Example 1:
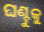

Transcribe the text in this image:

ଘଣ୍ଟୁକୁ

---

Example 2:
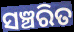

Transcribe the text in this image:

ସଞ୍ଚରିତ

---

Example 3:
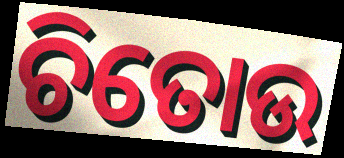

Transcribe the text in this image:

ଚିତୋଉ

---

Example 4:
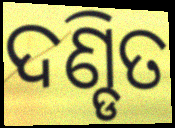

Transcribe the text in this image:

ଦଣ୍ଡିତ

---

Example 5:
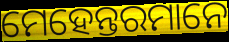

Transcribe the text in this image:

ମେହେନ୍ତରମାନେ